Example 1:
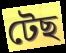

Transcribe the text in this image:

টেছ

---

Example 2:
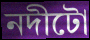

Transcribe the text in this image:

নদীটো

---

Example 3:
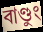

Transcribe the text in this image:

বাণ্ডুং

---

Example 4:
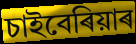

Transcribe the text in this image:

চাইবেৰিয়াৰ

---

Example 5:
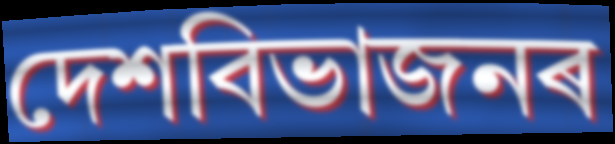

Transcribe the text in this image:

দেশবিভাজনৰ